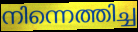
നിന്നെത്തിച്ച